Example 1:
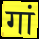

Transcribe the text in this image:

गां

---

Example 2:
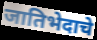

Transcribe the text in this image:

जातिभेदाचे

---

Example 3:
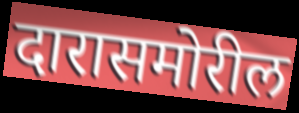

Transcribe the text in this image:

दारासमोरील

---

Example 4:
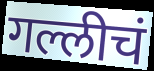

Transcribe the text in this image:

गल्लीचं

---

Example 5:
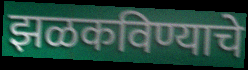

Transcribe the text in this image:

झळकविण्याचे